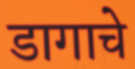
डागाचे